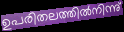
ഉപരിതലത്തിൽനിന്നു്